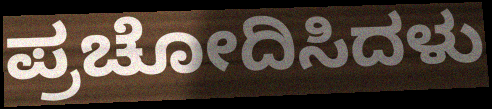
ಪ್ರಚೋದಿಸಿದಳು